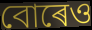
বোৰেও